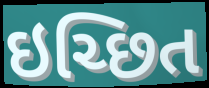
ઇચ્છિત